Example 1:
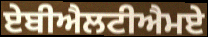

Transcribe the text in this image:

ਏਬੀਐਲਟੀਐਮਏ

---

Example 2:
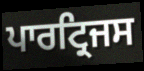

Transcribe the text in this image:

ਪਾਰਟ੍ਰਿਜਸ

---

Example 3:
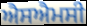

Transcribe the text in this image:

ਐਸਐਮਸੀ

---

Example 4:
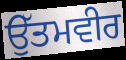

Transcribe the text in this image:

ਉੱਤਮਵੀਰ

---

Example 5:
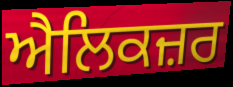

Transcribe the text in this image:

ਐਲਿਕਜ਼ਰ